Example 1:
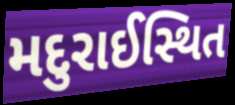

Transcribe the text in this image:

મદુરાઈસ્થિત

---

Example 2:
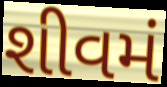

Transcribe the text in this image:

શીવમં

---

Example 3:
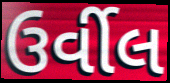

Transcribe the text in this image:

ઉર્વીલ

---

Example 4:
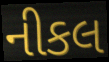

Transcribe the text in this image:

નીકલ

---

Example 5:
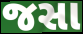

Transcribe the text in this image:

જસા